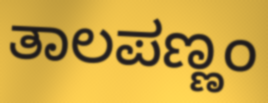
ತಾಲಪಣ್ಣಂ